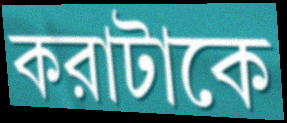
করাটাকে